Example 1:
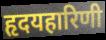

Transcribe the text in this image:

हृदयहारिणी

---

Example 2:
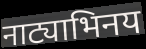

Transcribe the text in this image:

नाट्याभिनय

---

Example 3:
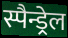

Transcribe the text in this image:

स्पैन्ड्रेल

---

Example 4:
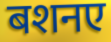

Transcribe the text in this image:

बशनए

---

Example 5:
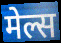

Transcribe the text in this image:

मेल्स